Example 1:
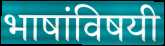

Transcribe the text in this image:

भाषांविषयी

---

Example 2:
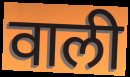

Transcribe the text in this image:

वाली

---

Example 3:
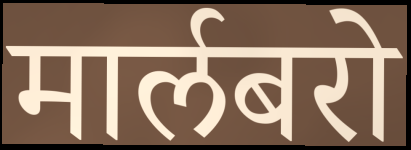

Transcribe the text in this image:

मार्लबरो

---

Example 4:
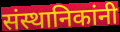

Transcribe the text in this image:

संस्थानिकांनी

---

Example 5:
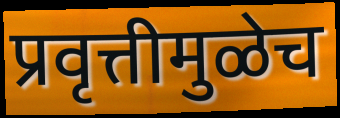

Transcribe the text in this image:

प्रवृत्तीमुळेच